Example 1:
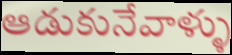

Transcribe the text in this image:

ఆడుకునేవాళ్ళు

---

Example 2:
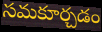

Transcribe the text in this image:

సమకూర్చడం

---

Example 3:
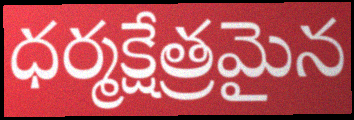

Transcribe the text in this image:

ధర్మక్షేత్రమైన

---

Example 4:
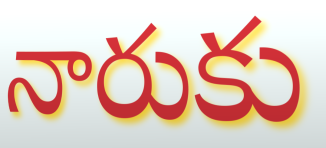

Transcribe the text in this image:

నారుకు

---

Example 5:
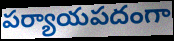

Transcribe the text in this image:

పర్యాయపదంగా